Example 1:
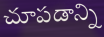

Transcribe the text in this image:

చూపడాన్ని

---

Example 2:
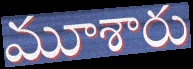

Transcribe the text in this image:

మూశారు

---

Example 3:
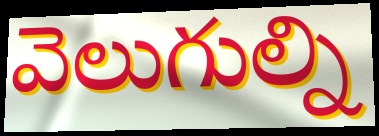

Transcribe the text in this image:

వెలుగుల్ని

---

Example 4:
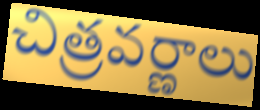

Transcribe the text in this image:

చిత్రవర్ణాలు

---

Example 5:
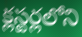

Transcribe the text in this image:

క్లస్టర్లలోని